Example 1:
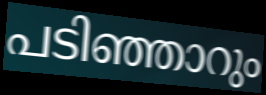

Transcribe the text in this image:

പടിഞ്ഞാറും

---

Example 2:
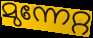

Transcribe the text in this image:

മുന്നേറ്റ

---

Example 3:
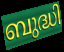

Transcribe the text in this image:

ബുദ്ധി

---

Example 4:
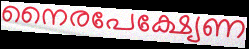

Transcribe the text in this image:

നൈരപേക്ഷ്യേണ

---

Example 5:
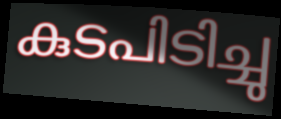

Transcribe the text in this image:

കുടപിടിച്ചു